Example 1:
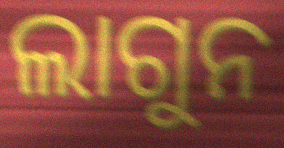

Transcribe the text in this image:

ଲାଗୁନ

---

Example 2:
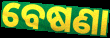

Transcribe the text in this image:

ବେଷଣା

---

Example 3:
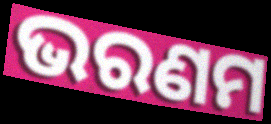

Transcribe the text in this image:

ଭରଣମ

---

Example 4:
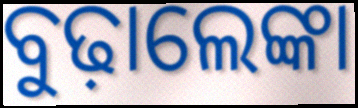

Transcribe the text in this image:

ବୁଢ଼ାଲେଙ୍କା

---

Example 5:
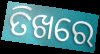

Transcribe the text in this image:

ତିଖରେ